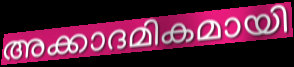
അക്കാദമികമായി